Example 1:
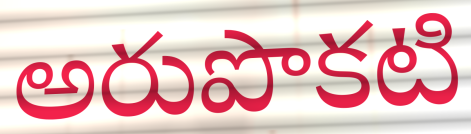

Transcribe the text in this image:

అరుపొకటి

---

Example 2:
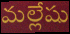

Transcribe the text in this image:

మల్లేషు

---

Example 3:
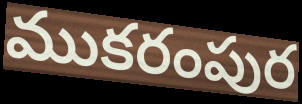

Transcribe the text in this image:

ముకరంపుర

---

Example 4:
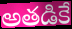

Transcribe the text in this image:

అతడికే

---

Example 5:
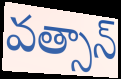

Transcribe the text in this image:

వత్సాన్